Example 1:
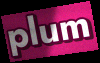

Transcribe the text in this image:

plum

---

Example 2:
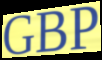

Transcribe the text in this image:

GBP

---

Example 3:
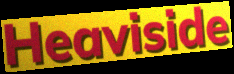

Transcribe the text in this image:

Heaviside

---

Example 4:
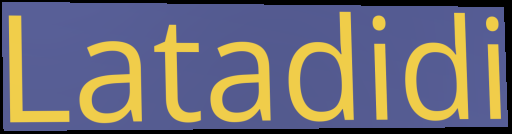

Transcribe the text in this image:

Latadidi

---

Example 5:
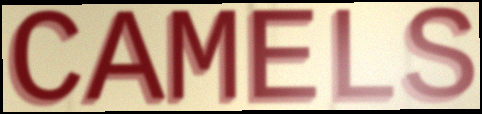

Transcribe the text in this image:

CAMELS